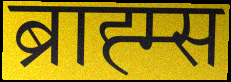
ब्राह्म्स